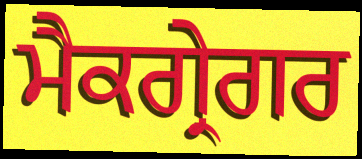
ਮੈਕਗ੍ਰੇਗਰ